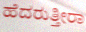
ಹೆದರುತ್ತೀರಾ